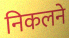
निकलने